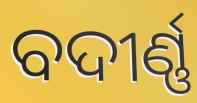
ବଦୀର୍ଣ୍ଣ